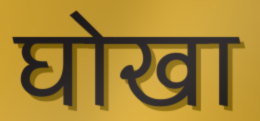
घोखा